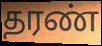
தரண்